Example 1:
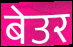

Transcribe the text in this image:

बेउर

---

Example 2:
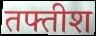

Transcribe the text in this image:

तफ्तीश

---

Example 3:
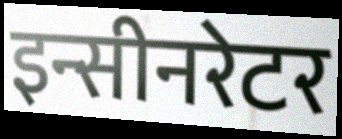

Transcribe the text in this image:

इन्सीनरेटर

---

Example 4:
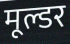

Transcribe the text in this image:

मूल्डर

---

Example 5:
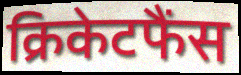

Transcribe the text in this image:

क्रिकेटफैंस